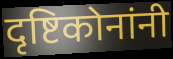
दृष्टिकोनांनी